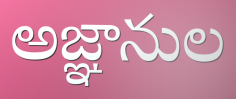
అజ్ఞానుల